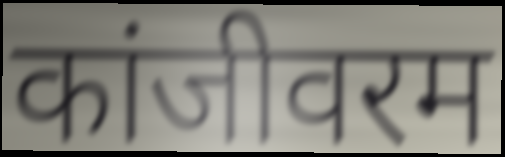
कांजीवरम